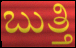
ಬುತ್ತಿ